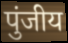
पुंजीय